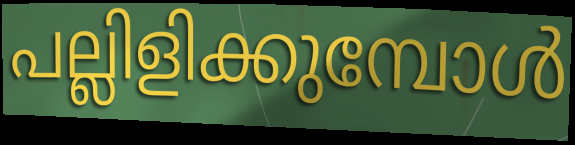
പല്ലിളിക്കുമ്പോൾ